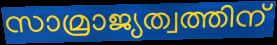
സാമ്രാജ്യത്വത്തിന്